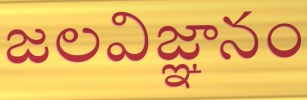
జలవిజ్ఞానం